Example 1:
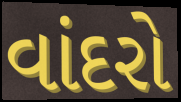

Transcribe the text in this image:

વાંદરો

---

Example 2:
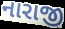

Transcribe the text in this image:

નારાજી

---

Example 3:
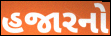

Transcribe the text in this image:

હજારનો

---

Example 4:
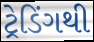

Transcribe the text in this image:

ટ્રેડિંગથી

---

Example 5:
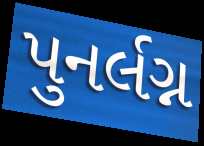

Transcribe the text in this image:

પુનર્લગ્ન